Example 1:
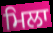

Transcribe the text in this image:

ਮਿਲਾ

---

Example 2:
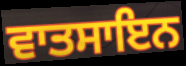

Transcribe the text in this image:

ਵਾਤਸਾਇਨ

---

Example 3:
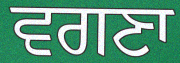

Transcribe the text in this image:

ਵਗਣਾ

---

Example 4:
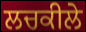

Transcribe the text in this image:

ਲਚਕੀਲੇ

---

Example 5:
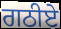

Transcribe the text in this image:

ਗਠੀਏ